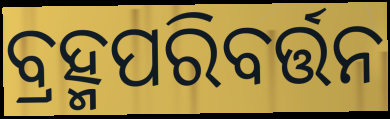
ବ୍ରହ୍ମପରିବର୍ତ୍ତନ